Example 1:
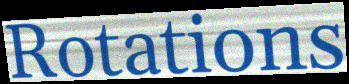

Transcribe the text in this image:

Rotations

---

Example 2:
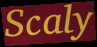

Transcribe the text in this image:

Scaly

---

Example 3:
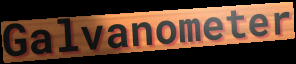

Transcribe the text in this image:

Galvanometer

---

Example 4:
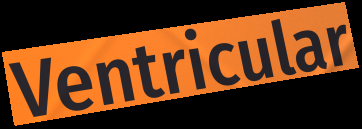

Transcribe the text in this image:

Ventricular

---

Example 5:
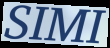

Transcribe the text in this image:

SIMI